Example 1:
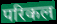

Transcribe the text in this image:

परिकल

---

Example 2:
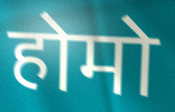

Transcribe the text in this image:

होमो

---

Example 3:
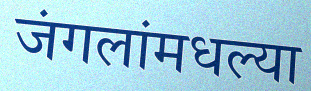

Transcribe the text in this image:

जंगलांमधल्या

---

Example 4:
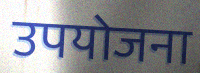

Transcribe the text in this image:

उपयोजना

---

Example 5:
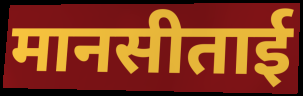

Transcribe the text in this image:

मानसीताई